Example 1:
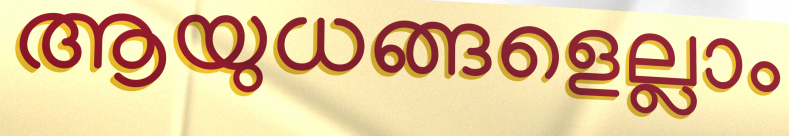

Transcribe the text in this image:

ആയുധങ്ങളെല്ലാം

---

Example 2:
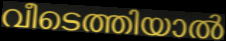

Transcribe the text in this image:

വീടെത്തിയാൽ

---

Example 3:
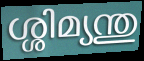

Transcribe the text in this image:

ശ്ശിമ്യന്തു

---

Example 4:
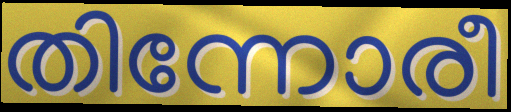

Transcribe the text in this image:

തിന്നോരീ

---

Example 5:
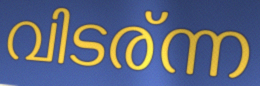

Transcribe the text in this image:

വിടര്ന്ന